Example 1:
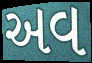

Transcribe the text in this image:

અવ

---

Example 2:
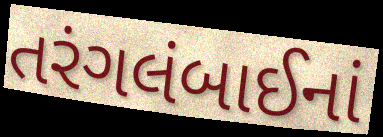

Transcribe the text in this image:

તરંગલંબાઈનાં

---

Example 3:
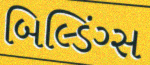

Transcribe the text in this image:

બિલ્ડિંગ્સ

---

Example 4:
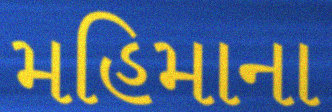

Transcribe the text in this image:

મહિમાના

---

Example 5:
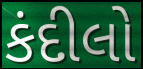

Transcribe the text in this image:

કંદીલો